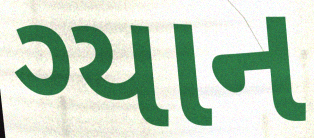
ગ્યાન